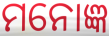
ମନୋଜ୍ଞ